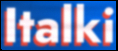
Italki